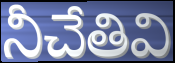
నీచేతివి